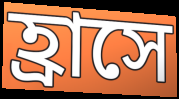
হ্রাসে